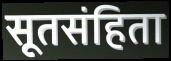
सूतसंहिता